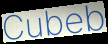
Cubeb